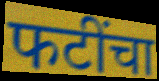
फटींचा